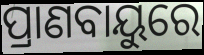
ପ୍ରାଣବାୟୁରେ